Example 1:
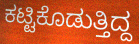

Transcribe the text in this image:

ಕಟ್ಟಿಕೊಡುತ್ತಿದ್ದ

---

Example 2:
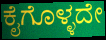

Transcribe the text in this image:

ಕೈಗೊಳ್ಳದೇ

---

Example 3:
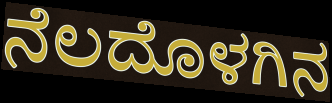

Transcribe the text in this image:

ನೆಲದೊಳಗಿನ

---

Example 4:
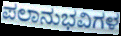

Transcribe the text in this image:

ಪಲಾನುಭವಿಗಳ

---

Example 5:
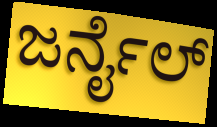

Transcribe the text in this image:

ಜರ್ನೈಲ್